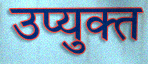
उप्युक्त